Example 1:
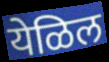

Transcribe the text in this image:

येळिल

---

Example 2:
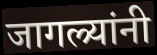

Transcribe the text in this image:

जागल्यांनी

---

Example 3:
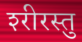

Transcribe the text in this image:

श्रीरस्तु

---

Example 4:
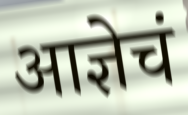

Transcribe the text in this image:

आज्ञेचं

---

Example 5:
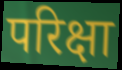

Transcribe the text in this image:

परिक्षा